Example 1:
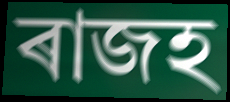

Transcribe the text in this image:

ৰাজহ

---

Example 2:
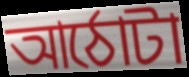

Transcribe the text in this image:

আঠোটা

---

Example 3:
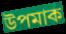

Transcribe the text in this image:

উপমাক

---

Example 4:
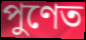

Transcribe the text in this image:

পুণেত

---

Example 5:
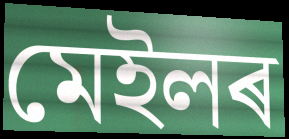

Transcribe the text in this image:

মেইলৰ